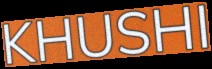
KHUSHI